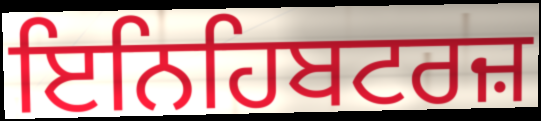
ਇਨਿਹਿਬਟਰਜ਼